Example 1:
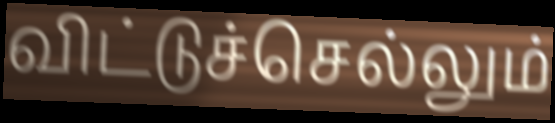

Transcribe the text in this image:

விட்டுச்செல்லும்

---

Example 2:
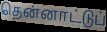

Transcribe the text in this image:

தென்னாட்டுப்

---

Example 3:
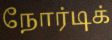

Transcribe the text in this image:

நோர்டிக்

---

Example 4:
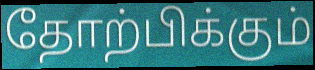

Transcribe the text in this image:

தோற்பிக்கும்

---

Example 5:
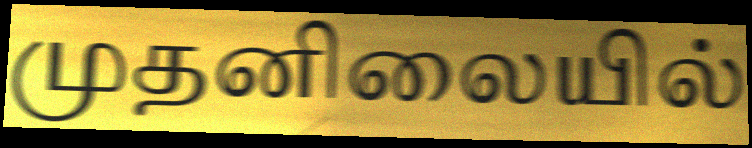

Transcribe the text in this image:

முதனிலையில்